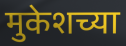
मुकेशच्या